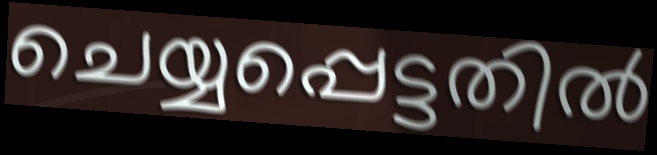
ചെയ്യപ്പെട്ടതിൽ